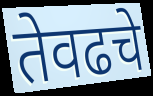
तेवढचे